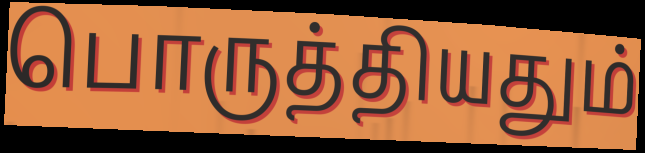
பொருத்தியதும்